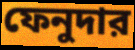
ফেনুদার